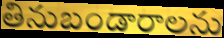
తినుబండారాలను